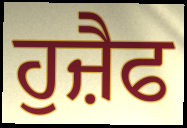
ਹੁਜ਼ੈਫ